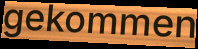
gekommen